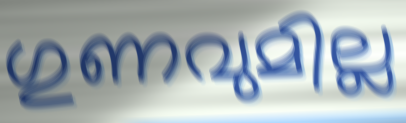
ഗുണവുമില്ല